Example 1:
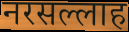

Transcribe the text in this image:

नरसल्लाह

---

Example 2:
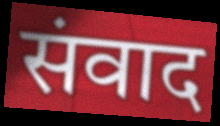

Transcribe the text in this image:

संवाद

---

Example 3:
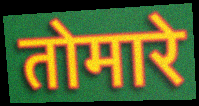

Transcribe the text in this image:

तोमारे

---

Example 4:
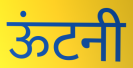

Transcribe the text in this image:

ऊंटनी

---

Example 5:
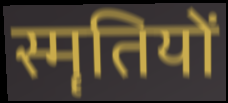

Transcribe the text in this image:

स्मॄतियों